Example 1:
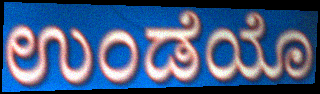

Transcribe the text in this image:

ಉಂಡೆಯೊ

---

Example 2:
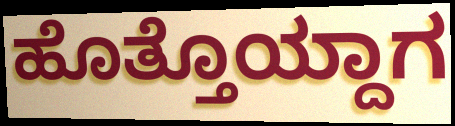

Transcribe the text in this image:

ಹೊತ್ತೊಯ್ದಾಗ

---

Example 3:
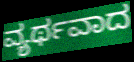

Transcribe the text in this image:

ವ್ಯರ್ಥವಾದ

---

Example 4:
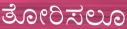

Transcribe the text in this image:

ತೋರಿಸಲೂ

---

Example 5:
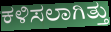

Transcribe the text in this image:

ಕಳಿಸಲಾಗಿತ್ತು